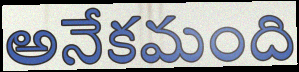
అనేకమంది